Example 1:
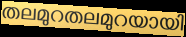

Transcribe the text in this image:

തലമുറതലമുറയായി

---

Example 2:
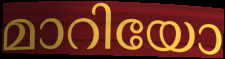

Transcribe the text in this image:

മാറിയോ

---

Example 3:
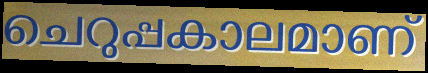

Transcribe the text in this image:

ചെറുപ്പകാലമാണ്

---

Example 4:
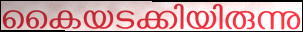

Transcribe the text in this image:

കൈയടക്കിയിരുന്നു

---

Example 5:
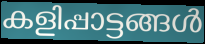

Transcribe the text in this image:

കളിപ്പാട്ടങ്ങൾ